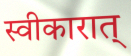
स्वीकारात्